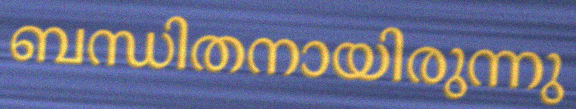
ബന്ധിതനായിരുന്നു